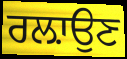
ਰਲ਼ਾਉਣ